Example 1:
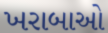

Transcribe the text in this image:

ખરાબાઓ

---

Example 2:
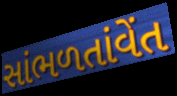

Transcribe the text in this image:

સાંભળતાંવેંત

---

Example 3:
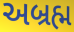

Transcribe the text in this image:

અબ્રહ્મ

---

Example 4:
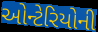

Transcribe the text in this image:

ઓન્ટેરિયોની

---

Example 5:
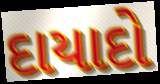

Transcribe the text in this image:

દાયાદો